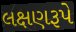
લક્ષણરૂપે